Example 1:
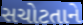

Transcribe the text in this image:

સચોટતાને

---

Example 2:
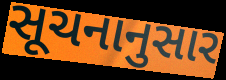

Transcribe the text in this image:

સૂચનાનુસાર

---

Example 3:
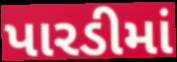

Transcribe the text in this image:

પારડીમાં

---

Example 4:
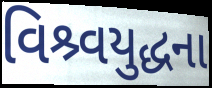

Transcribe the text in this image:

વિશ્ર્વયુદ્ધના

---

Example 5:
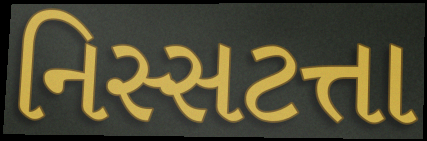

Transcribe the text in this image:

નિસ્સટત્તા